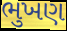
ભુખણ